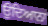
ਉਦਿਆਨਾ